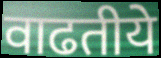
वाढतीये